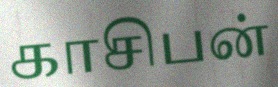
காசிபன்